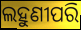
ଲହୁଣୀପରି